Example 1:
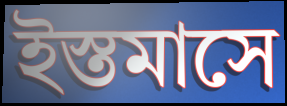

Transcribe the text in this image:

ইস্তমাসে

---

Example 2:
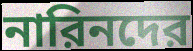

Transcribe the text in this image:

নারিনদের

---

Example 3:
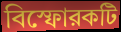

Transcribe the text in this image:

বিস্ফোরকটি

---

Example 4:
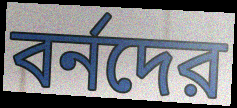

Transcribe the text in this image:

বর্নদের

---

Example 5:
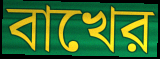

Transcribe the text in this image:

বাখের